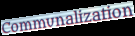
Communalization